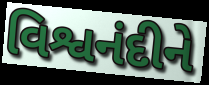
વિશ્વનંદીને